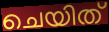
ചെയിത്